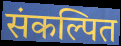
संकल्पित